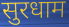
सुरधाम